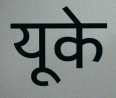
यूके